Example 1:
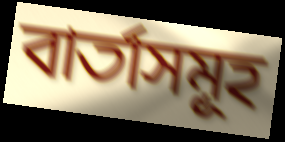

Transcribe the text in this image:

বাৰ্তাসমূহ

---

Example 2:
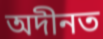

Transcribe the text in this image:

অদীনত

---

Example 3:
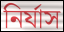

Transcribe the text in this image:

নিৰ্যাস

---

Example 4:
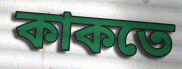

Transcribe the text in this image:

কাকতে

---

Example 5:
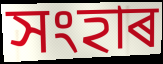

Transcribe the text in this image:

সংহাৰ